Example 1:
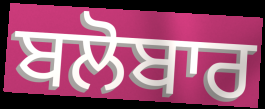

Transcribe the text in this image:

ਬਲੋਬਾਰ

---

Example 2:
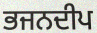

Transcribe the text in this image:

ਭਜਨਦੀਪ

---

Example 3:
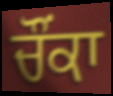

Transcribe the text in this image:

ਚੌੰਕਾ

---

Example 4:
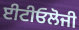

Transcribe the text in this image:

ਈਟੀਓਲੋਜੀ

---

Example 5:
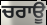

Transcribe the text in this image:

ਚਰਾਊ